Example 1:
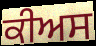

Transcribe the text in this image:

ਕੀਅਸ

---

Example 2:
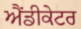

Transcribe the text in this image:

ਐਂਡੀਕੇਟਰ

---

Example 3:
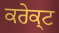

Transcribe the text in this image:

ਕਰੇਕ੍ਟ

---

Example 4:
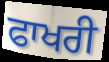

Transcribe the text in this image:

ਫਾਖਰੀ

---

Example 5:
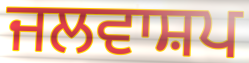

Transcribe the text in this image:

ਜਲਵਾਸ਼ਪ